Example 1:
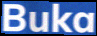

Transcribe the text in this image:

Buka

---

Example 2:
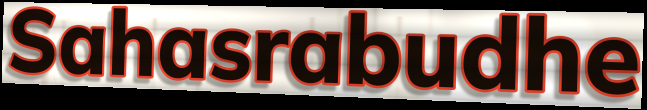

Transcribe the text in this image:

Sahasrabudhe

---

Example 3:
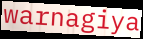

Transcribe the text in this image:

warnagiya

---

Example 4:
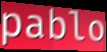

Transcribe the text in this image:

pablo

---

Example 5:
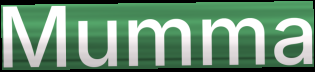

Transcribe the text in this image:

Mumma